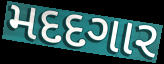
મદદગાર